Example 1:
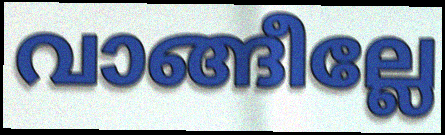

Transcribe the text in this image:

വാങ്ങീല്ലേ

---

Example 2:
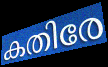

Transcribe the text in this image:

കതിരേ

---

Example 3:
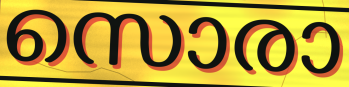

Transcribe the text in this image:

സൊരാ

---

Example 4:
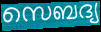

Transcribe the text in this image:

സെബദ്യ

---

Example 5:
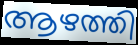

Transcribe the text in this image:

ആഴത്തി